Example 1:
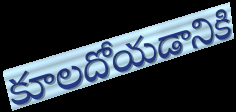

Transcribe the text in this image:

కూలదోయడానికి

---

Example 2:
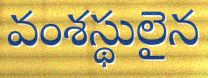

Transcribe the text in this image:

వంశస్థులైన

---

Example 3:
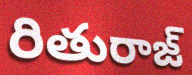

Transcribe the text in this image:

రితురాజ్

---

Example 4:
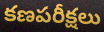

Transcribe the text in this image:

కణపరీక్షలు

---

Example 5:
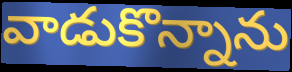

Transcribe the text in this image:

వాడుకొన్నాను